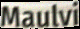
Maulvi